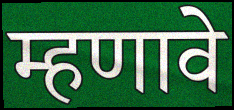
म्हणावे